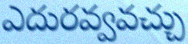
ఎదురవ్వవచ్చు